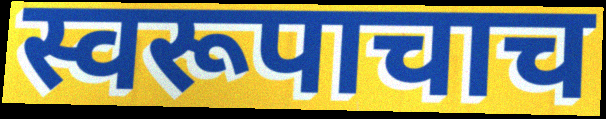
स्वरूपाचाच